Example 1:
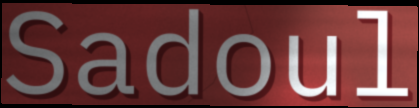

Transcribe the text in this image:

Sadoul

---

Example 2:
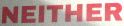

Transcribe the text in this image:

NEITHER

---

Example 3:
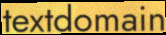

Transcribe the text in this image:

textdomain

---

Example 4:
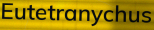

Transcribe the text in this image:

Eutetranychus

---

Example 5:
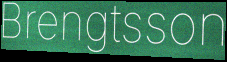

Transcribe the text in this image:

Brengtsson